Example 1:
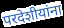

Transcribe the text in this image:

परदेशीयांना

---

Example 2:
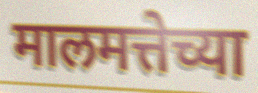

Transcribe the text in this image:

मालमत्तेच्या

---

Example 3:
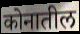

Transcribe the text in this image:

कोनातील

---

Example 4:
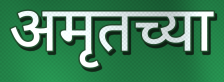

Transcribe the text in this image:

अमृतच्या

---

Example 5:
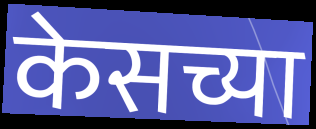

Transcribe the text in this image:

केसच्या